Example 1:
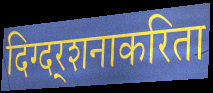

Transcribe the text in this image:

दिग्दर्शनाकरिता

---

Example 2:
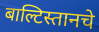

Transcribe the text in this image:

बाल्टिस्तानचे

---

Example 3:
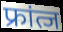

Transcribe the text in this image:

फ्रांत्ज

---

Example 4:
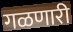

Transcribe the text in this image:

गळणारी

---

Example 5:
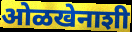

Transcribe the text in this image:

ओळखेनाशी